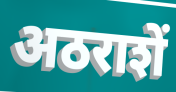
अठराशें